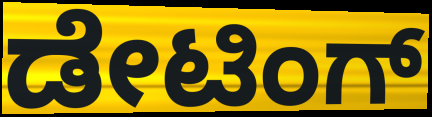
ಡೇಟಿಂಗ್